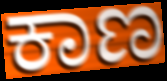
ಕಾಣ